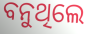
ବନୁଥିଲେ